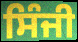
ਸਿੰਜੀ